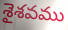
శైశవము